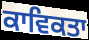
ਕਾਵਿਕਤਾ